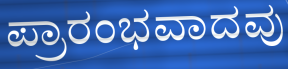
ಪ್ರಾರಂಭವಾದವು